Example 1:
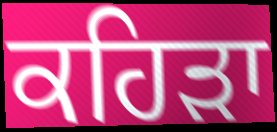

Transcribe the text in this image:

ਕਹਿੜਾ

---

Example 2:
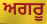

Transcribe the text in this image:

ਅਗਰੂ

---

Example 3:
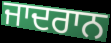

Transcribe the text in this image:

ਜਾਦਰਾਨ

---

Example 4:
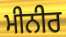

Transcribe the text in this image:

ਮੀਨੀਰ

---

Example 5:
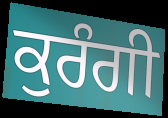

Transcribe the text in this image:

ਕੁਰੰਗੀ